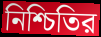
নিশ্চিতির